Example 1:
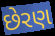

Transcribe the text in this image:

છેરણ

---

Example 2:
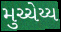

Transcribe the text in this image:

મુચ્ચેય્ય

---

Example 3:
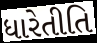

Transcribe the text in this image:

ધારેતીતિ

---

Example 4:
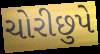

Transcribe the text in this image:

ચોરીછુપે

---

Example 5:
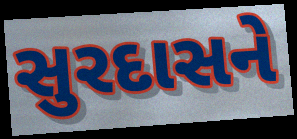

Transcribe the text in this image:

સુરદાસને